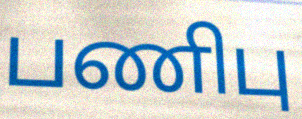
பணிபு